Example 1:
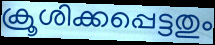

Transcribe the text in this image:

ക്രൂശിക്കപ്പെട്ടതും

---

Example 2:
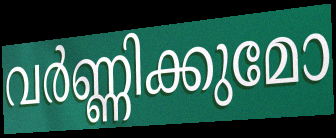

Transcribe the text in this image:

വർണ്ണിക്കുമോ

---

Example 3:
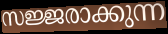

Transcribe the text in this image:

സജ്ജരാക്കുന്ന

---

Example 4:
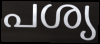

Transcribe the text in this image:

പശ്യ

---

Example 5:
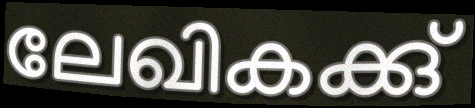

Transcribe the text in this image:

ലേഖികക്കു്